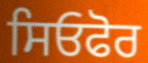
ਸਿਓਫੋਰ